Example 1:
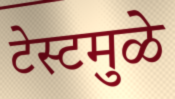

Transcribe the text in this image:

टेस्टमुळे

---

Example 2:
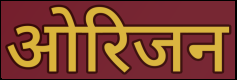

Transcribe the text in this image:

ओरिजन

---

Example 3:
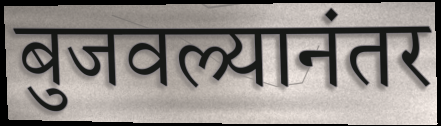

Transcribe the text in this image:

बुजवल्यानंतर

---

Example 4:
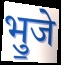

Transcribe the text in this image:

भु॒जे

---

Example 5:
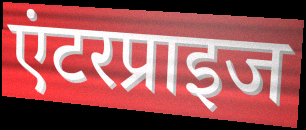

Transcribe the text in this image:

एंटरप्राइज